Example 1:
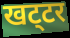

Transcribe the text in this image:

खट्‌टर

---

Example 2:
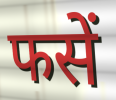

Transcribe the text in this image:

फसें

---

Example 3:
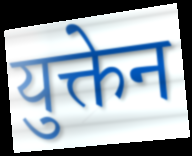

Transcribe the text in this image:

युक्तेन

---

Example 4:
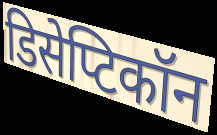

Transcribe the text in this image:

डिसेप्टिकॉन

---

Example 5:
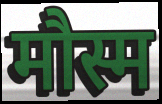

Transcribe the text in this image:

मौस्म